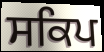
ਸਕਿਪ